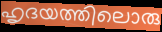
ഹൃദയത്തിലൊരു